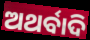
ଅଥର୍ବାଦି